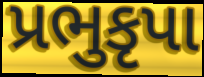
પ્રભુકૃપા